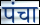
पंचा